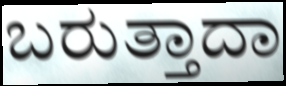
ಬರುತ್ತಾದಾ